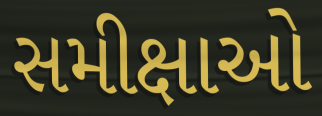
સમીક્ષાઓ